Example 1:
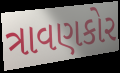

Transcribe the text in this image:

ત્રાવણકોર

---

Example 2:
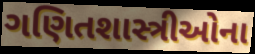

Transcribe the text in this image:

ગણિતશાસ્ત્રીઓના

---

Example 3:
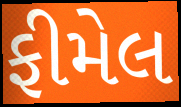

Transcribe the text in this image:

ફીમેલ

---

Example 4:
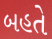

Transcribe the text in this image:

બહતે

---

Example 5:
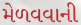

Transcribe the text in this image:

મેળવવાની